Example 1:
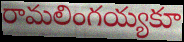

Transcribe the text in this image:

రామలింగయ్యకూ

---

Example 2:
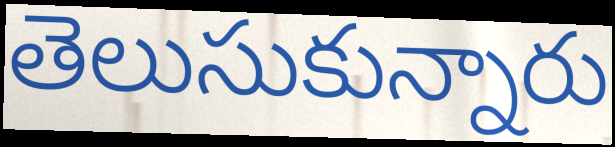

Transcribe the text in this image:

తెలుసుకున్నారు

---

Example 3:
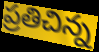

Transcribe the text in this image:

ప్రతిచిన్న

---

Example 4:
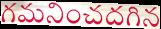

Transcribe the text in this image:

గమనించదగిన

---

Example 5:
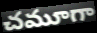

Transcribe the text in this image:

చమూగా